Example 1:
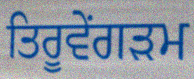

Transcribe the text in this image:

ਤਿਰੂਵੇਂਗੜਮ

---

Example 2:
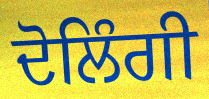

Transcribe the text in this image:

ਦੋਲਿੰਗੀ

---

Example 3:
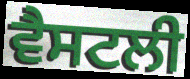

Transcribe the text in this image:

ਵੈਸਟਲੀ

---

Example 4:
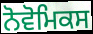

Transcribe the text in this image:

ਨੋਵੋਮਿਕਸ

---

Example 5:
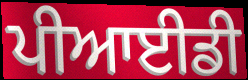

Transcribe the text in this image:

ਪੀਆਈਡੀ